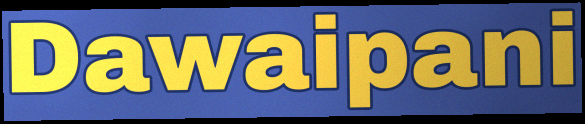
Dawaipani